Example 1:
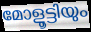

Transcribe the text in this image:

മോളൂട്ടിയും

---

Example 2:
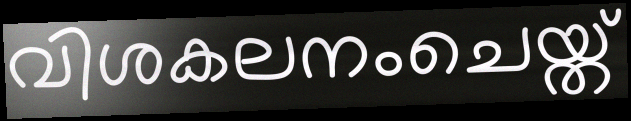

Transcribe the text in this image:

വിശകലനംചെയ്ത്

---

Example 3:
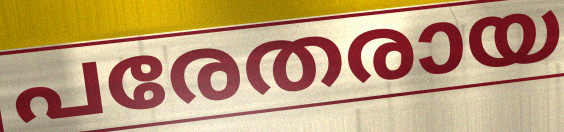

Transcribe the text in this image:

പരേതരായ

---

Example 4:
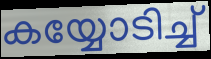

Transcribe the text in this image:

കയ്യോടിച്ച്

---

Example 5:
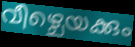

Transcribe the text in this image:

വീഴ്ചെയക്കും